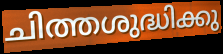
ചിത്തശുദ്ധിക്കു